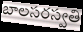
బాలసరస్వతి